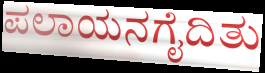
ಪಲಾಯನಗೈದಿತು